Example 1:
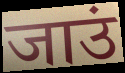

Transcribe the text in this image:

जाउं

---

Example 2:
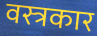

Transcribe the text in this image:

वस्त्रकार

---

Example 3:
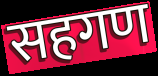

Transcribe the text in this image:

सहगण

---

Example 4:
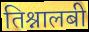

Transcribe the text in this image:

तिश्नालबी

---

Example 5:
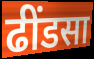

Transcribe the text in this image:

ढींडसा